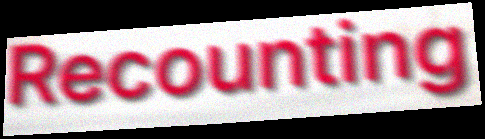
Recounting